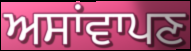
ਅਸਾਂਵਾਪਣ